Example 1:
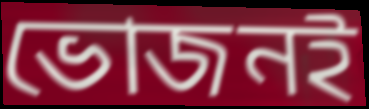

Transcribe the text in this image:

ভোজনই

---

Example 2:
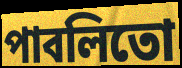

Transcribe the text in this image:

পাবলিতো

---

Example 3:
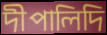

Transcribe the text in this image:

দীপালিদি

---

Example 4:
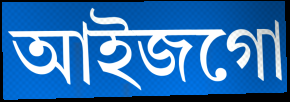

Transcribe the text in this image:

আইজগো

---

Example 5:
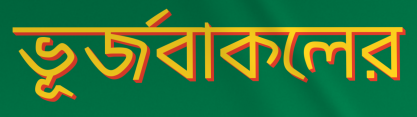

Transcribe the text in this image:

ভূর্জবাকলের